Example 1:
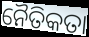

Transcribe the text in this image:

ନୈତିକତା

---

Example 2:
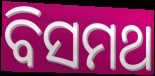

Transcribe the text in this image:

ବିସମଥ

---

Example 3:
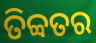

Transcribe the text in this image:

ତିବ୍ବତର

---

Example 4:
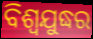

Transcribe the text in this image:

ବିଶ୍ୱଯୁଦ୍ଧର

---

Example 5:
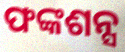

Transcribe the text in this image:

ଫଙ୍କଶନ୍ସ